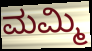
ಮಮ್ಮಿ